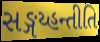
સઙ્ગય્હન્તીતિ